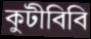
কুটীবিবি